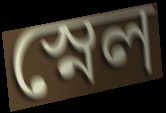
স্নেল